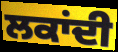
ਲਕਾਂਦੀ